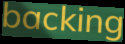
backing